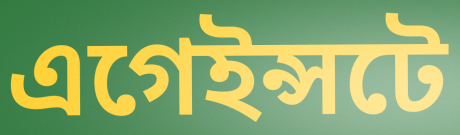
এগেইন্সটে